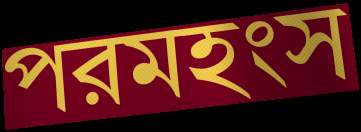
পরমহংস